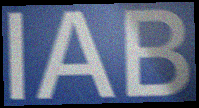
IAB